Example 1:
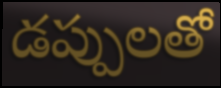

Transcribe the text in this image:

డప్పులతో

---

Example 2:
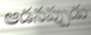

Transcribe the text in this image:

ఆడనప్పుడు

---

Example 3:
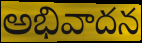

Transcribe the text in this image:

అభివాదన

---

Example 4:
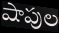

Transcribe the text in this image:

షాపుల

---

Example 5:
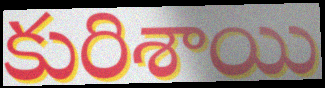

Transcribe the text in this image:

కురిశాయి